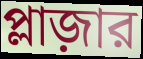
প্লাজ়ার